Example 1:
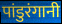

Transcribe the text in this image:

पांडुरंगानी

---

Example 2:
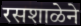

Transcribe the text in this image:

रसशाळेने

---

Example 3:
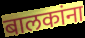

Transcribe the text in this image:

बालकांना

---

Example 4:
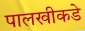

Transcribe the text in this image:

पालखीकडे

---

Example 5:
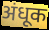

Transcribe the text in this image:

अंधूक